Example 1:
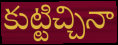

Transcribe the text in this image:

కుట్టిచ్చినా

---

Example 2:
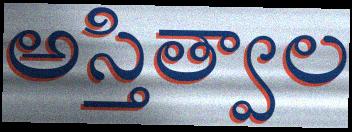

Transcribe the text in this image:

అస్తిత్వాల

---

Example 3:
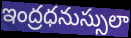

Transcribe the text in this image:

ఇంద్రధనుస్సులా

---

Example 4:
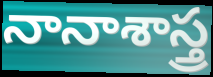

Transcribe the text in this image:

నానాశాస్త్ర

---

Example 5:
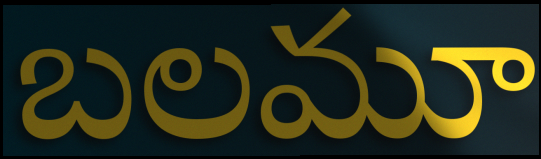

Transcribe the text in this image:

బలమూ